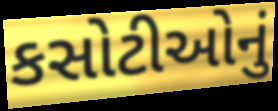
કસોટીઓનું